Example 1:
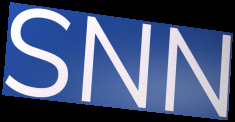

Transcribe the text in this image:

SNN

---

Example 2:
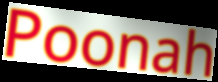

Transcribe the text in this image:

Poonah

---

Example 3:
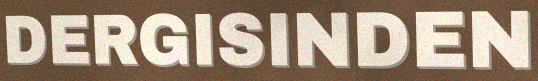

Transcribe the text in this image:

DERGISINDEN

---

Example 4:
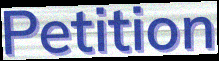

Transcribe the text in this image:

Petition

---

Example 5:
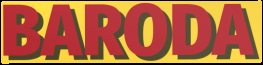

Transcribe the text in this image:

BARODA